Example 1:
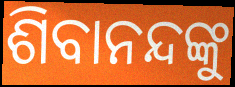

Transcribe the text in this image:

ଶିବାନନ୍ଦଙ୍କୁ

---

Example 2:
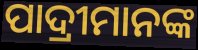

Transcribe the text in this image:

ପାଦ୍ରୀମାନଙ୍କ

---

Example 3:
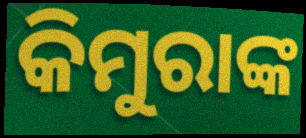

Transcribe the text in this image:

କିମୁରାଙ୍କ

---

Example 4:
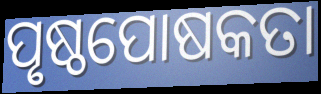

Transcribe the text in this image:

ପୃଷ୍ଠପୋଷକତା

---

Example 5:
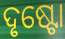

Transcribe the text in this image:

ଦୃଷ୍ଟୋ